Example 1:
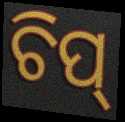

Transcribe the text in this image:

ଚିପ୍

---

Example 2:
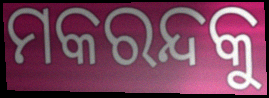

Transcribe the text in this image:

ମକରନ୍ଦକୁ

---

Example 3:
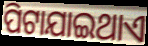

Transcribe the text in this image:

ପିଟାଯାଇଥାଏ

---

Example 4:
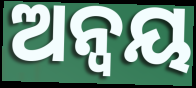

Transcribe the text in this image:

ଅନ୍ୱୟ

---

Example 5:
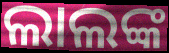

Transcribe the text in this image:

ଲାଲଙ୍କ